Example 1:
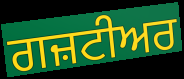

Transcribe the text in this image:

ਗਜ਼ਟੀਅਰ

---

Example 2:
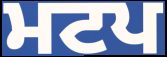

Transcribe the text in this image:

ਮਟਪ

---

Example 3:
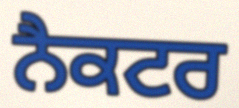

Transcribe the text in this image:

ਨੈਕਟਰ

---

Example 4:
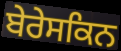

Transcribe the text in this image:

ਬੇਰੇਸਕਿਨ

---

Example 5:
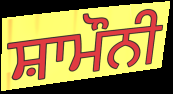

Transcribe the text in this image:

ਸ਼ਾਮੌਨੀ